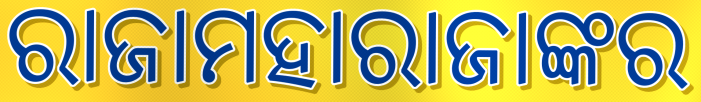
ରାଜାମହାରାଜାଙ୍କର